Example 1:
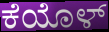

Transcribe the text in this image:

ಕೆಯೊಳ್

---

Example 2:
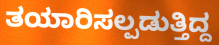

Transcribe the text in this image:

ತಯಾರಿಸಲ್ಪಡುತ್ತಿದ್ದ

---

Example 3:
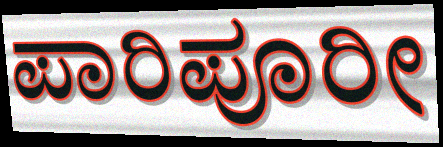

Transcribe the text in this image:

ಪಾರಿಪೂರೀ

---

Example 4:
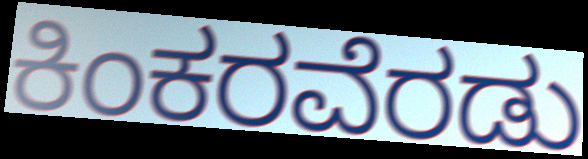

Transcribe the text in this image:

ಕಿಂಕರವೆರಡು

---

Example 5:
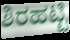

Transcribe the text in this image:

ಶಿರಹಟ್ಟಿ